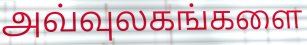
அவ்வுலகங்களை